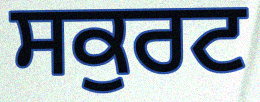
ਸਕੁਰਟ